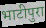
भाटीपुरा